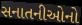
સનાતનીઓનો